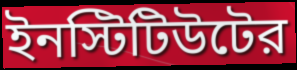
ইনস্টিটিউটের